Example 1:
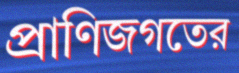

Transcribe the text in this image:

প্রাণিজগতের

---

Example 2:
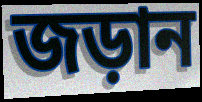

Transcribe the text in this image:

জড়ান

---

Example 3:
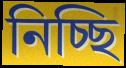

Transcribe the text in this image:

নিচ্ছি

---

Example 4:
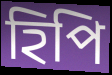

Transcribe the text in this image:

হিপি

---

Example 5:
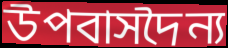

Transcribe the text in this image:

উপবাসদৈন্য